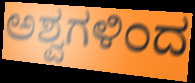
ಅಶ್ವಗಳಿಂದ